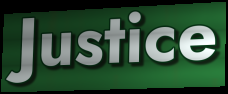
Justice